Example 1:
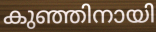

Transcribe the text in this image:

കുഞ്ഞിനായി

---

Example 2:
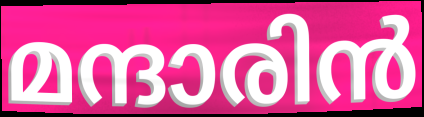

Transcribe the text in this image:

മന്ദാരിൻ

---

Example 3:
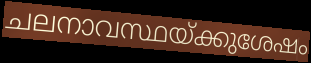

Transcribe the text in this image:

ചലനാവസ്ഥയ്ക്കുശേഷം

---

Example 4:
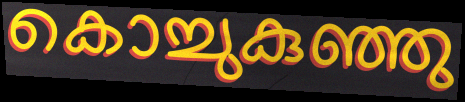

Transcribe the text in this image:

കൊച്ചുകുഞ്ഞു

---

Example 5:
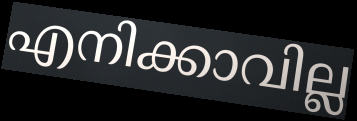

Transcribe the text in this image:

എനിക്കാവില്ല